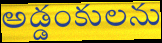
అడ్డంకులను